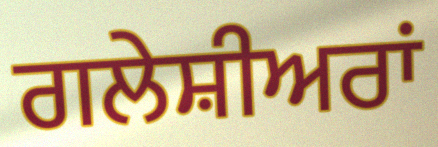
ਗਲੇਸ਼ੀਅਰਾਂ